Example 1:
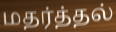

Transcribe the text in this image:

மதர்த்தல்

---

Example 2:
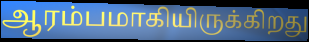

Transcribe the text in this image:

ஆரம்பமாகியிருக்கிறது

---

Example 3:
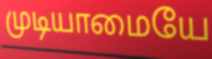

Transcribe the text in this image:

முடியாமையே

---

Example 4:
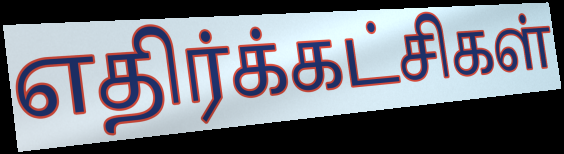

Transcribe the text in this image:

எதிர்க்கட்சிகள்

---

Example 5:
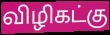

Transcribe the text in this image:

விழிகட்கு